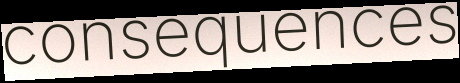
consequences